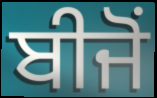
ਬੀਜੋਂ